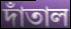
দাঁতাল